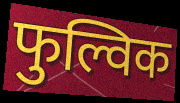
फुल्विक